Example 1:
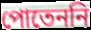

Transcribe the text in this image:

পোতেননি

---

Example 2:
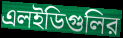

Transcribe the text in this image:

এলইডিগুলির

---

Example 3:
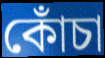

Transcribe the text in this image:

কোঁচা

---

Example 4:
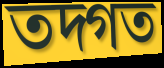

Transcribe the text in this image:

তদ্গত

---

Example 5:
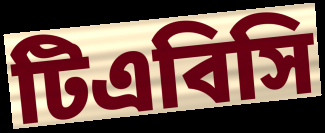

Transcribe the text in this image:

টিএবিসি